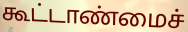
கூட்டாண்மைச்